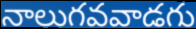
నాలుగవవాడగు